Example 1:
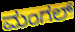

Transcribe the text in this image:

ಮಂಗಲ್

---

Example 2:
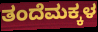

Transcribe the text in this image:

ತಂದೆಮಕ್ಕಳ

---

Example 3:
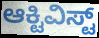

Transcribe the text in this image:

ಆಕ್ಟಿವಿಸ್ಟ್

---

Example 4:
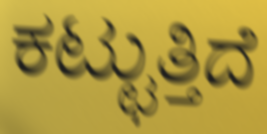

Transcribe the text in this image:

ಕಟ್ಟುತ್ತಿದೆ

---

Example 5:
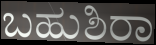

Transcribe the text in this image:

ಬಹುಶಿರಾ